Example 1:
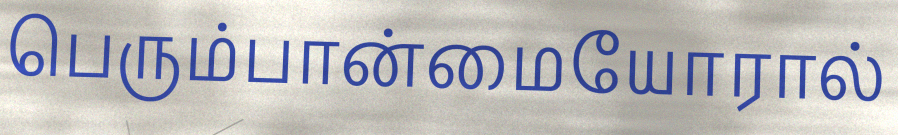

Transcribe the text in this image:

பெரும்பான்மையோரால்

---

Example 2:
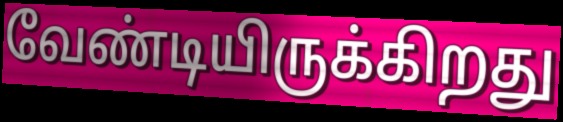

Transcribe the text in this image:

வேண்டியிருக்கிறது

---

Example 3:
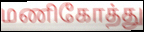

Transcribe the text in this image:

மணிகோத்து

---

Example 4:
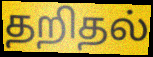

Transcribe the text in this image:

தறிதல்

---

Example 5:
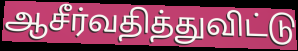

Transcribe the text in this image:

ஆசீர்வதித்துவிட்டு